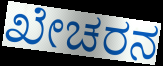
ಖೇಚರನ